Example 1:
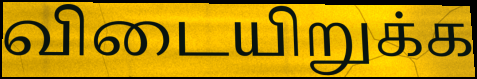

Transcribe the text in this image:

விடையிறுக்க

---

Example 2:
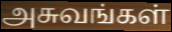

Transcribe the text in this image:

அசுவங்கள்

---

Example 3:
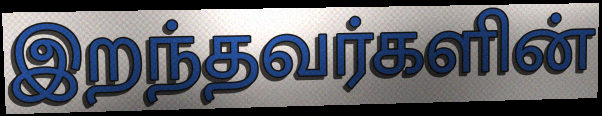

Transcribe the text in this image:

இறந்தவர்களின்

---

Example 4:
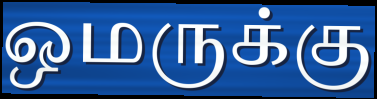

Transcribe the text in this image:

ஒமருக்கு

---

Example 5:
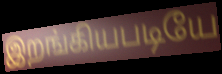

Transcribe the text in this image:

இறங்கியபடியே